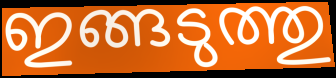
ഇങ്ങടുത്തു